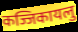
कज्जिकायलु